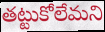
తట్టుకోలేమని